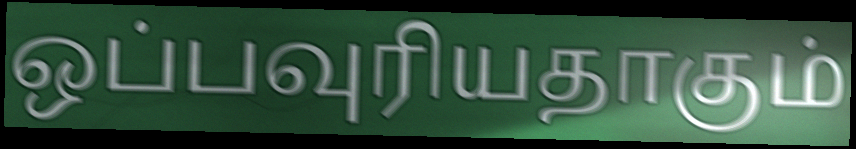
ஒப்பவுரியதாகும்